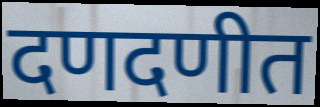
दणदणीत